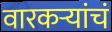
वारकऱ्यांचं